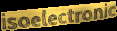
isoelectronic